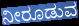
ನೀರೂಡುವ